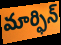
మార్ఫిన్